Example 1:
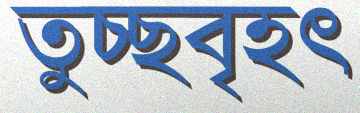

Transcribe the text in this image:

তুচ্ছবৃহৎ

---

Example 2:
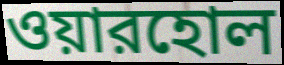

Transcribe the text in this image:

ওয়ারহোল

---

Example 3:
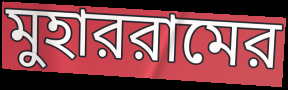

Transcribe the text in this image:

মুহাররামের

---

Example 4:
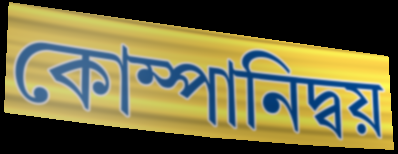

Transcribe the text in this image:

কোম্পানিদ্বয়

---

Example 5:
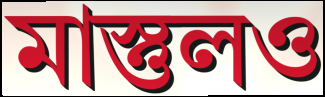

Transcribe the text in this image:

মাস্তুলও